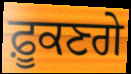
ਫ਼ੂਕਣਗੇ